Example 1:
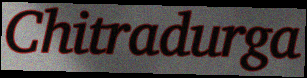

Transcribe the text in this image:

Chitradurga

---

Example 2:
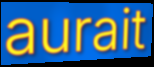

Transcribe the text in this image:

aurait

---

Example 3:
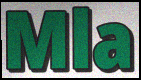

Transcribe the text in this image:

Mla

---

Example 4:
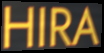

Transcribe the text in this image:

HIRA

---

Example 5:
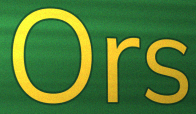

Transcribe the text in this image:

Ors